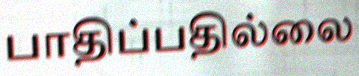
பாதிப்பதில்லை